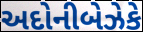
અદોનીબેઝેકે